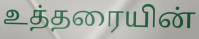
உத்தரையின்